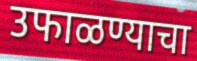
उफाळण्याचा